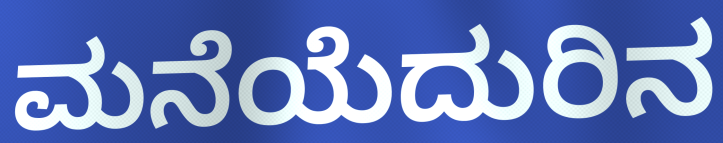
ಮನೆಯೆದುರಿನ